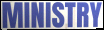
MINISTRY